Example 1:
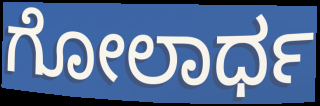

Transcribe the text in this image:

ಗೋಲಾರ್ಧ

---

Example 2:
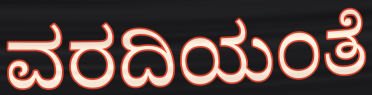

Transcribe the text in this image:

ವರದಿಯಂತೆ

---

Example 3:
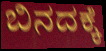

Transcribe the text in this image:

ಬಿನದಕ್ಕೆ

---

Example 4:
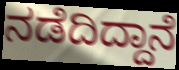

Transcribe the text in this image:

ನಡೆದಿದ್ದಾನೆ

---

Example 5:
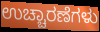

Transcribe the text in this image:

ಉಚ್ಚಾರಣೆಗಳು